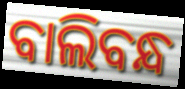
ବାଲିବନ୍ଧ